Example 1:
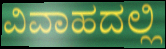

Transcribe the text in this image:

ವಿವಾಹದಲ್ಲಿ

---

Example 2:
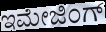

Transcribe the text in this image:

ಇಮೇಜಿಂಗ್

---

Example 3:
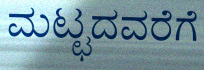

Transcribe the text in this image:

ಮಟ್ಟದವರೆಗೆ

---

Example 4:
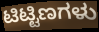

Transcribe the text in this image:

ಟಿಟ್ಟಿಣಗಳು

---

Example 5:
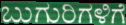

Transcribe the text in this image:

ಬುಗುರಿಗಳಿಗೆ